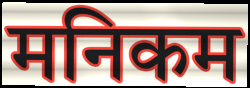
मनिकम